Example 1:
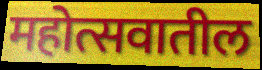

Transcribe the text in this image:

महोत्सवातील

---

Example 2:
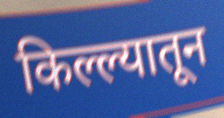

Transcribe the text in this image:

किल्ल्यातून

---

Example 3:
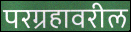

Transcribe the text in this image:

परग्रहावरील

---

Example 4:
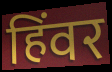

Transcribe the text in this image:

हिंवर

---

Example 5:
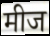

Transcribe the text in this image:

मीज